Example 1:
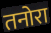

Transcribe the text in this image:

तनोरा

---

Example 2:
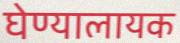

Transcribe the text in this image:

घेण्यालायक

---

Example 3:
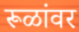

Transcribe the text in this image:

रूळांवर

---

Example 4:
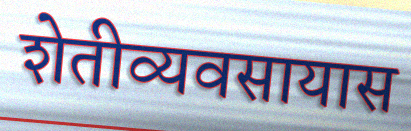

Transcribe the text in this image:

शेतीव्यवसायास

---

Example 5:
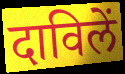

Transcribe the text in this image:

दाविलें